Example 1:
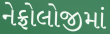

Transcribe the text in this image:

નેફ્રોલોજીમાં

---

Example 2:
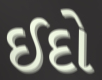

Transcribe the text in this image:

ઈદો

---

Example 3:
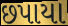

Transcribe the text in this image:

છપાયા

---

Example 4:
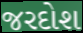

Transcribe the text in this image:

જરદોશ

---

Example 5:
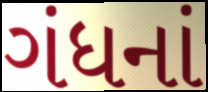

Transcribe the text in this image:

ગંધનાં